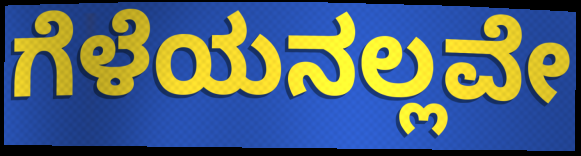
ಗೆಳೆಯನಲ್ಲವೇ